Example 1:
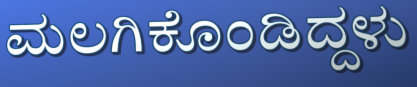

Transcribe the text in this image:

ಮಲಗಿಕೊಂಡಿದ್ದಳು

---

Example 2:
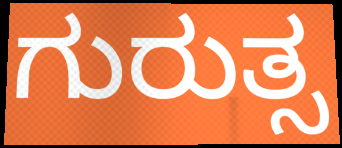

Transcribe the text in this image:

ಗುರುತ್ಸ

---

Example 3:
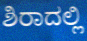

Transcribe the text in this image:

ಶಿರಾದಲ್ಲಿ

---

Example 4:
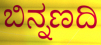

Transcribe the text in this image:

ಬಿನ್ನಣದಿ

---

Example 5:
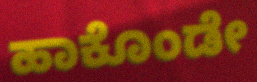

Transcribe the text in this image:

ಹಾಕೊಂಡೇ